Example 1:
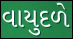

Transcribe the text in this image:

વાયુદળે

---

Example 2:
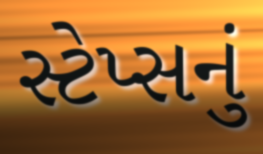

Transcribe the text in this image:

સ્ટેપ્સનું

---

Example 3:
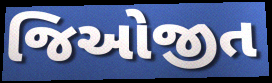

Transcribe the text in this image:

જિઓજીત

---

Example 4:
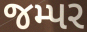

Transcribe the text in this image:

જમ્પર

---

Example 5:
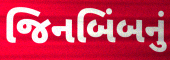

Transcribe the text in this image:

જિનબિંબનું